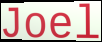
Joel